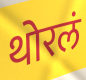
थोरलं